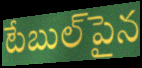
టేబుల్‌పైన